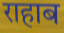
राहाब